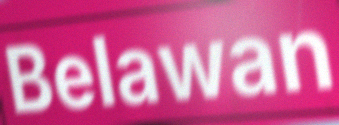
Belawan